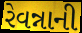
રેવન્નાની